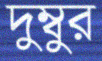
দুম্বুর